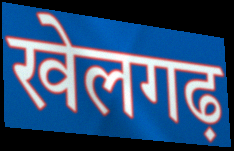
खेलगढ़